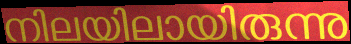
നിലയിലായിരുന്നു